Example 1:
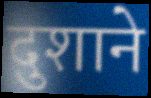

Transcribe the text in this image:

दुशाने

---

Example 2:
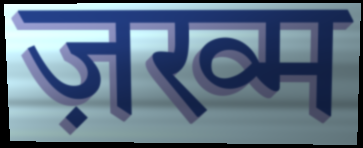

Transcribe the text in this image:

ज़ख्म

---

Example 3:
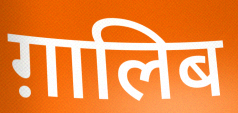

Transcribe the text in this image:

ग़ालिब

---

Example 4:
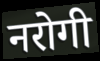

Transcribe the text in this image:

नरोगी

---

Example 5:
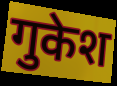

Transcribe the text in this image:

गुकेश